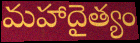
మహాదైత్యం